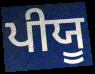
ਪੀਯੂ